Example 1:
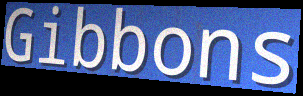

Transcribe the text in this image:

Gibbons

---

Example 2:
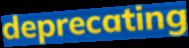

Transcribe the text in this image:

deprecating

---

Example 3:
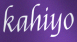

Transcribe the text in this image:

kahiyo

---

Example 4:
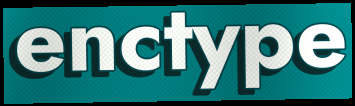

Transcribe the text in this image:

enctype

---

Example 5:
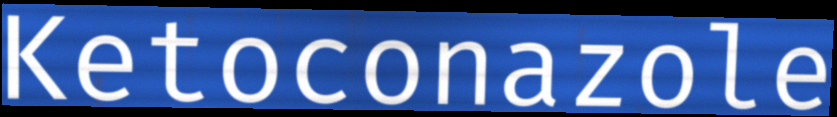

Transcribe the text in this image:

Ketoconazole